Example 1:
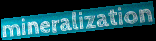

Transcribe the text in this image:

mineralization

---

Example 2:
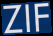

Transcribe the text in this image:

ZIF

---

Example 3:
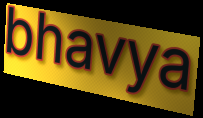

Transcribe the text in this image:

bhavya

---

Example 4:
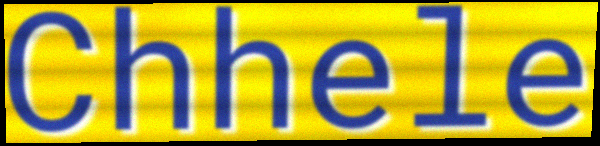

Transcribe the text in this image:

Chhele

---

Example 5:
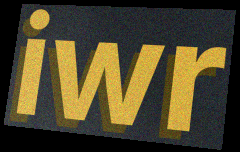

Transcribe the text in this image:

iwr